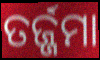
ତର୍ଜ୍ଜମା